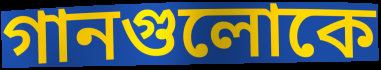
গানগুলোকে